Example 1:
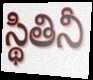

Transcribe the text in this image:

స్థితినీ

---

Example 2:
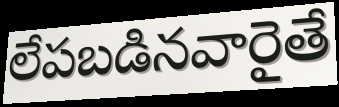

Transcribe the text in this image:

లేపబడినవారైతే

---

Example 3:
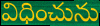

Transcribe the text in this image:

విధించును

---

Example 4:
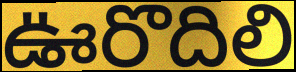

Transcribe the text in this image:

ఊరొదిలి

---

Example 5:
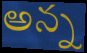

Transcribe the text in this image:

అన్న